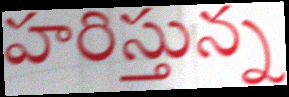
హరిస్తున్న